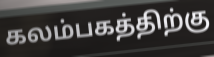
கலம்பகத்திற்கு